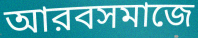
আরবসমাজে